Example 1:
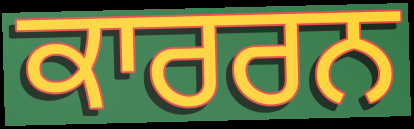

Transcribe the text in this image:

ਕਾਰਰਨ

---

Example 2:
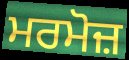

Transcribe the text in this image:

ਮਰਮੋਜ਼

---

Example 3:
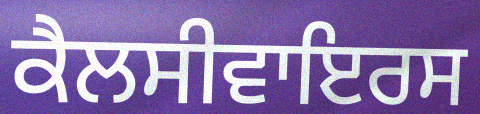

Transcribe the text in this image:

ਕੈਲਸੀਵਾਇਰਸ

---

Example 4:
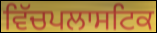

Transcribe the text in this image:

ਵਿੱਚਪਲਾਸਟਿਕ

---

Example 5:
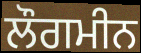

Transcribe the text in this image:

ਲੌਗਮੀਨ